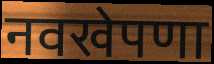
नवखेपणा